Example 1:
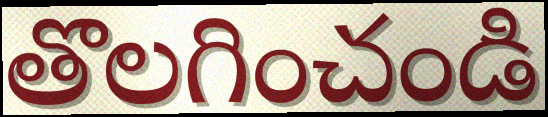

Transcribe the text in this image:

తొలగించండి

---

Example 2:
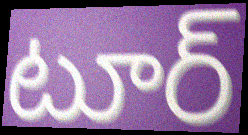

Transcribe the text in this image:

టూర్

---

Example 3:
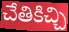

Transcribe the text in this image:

చేతికిచ్చి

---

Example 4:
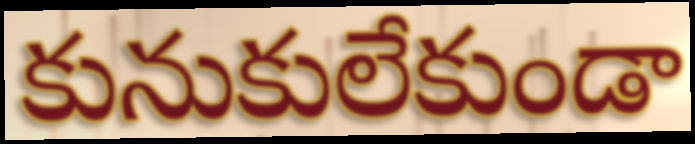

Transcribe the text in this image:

కునుకులేకుండా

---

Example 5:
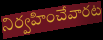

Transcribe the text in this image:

నిర్వహించేవారట